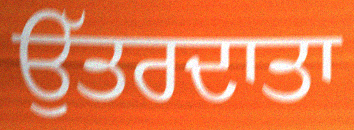
ਉੱਤਰਦਾਤਾ